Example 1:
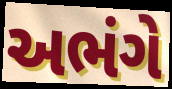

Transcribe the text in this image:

અભંગે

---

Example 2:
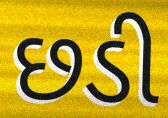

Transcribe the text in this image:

છડી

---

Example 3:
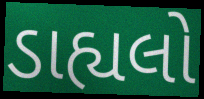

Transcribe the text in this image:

ડાહ્યલો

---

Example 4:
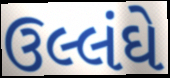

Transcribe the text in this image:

ઉલ્લંઘે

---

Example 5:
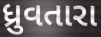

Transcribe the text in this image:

ધ્રુવતારા